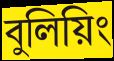
বুলিয়িং